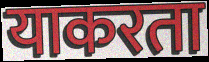
याकरता